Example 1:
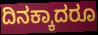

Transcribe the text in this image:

ದಿನಕ್ಕಾದರೂ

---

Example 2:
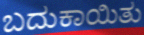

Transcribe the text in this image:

ಬದುಕಾಯಿತು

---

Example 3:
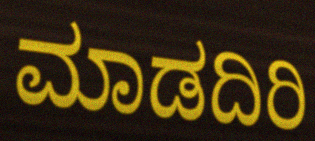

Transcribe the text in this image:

ಮಾಡದಿರಿ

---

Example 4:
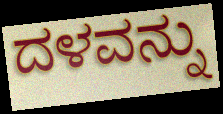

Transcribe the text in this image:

ದಳವನ್ನು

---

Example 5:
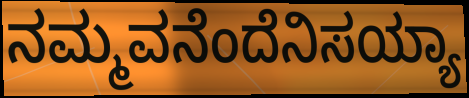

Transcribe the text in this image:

ನಮ್ಮವನೆಂದೆನಿಸಯ್ಯಾ